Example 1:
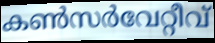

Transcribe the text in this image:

കൺസർവേറ്റീവ്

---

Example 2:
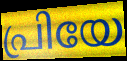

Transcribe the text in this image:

പ്രിയേ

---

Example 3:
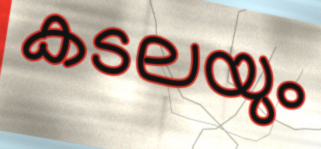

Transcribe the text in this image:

കടലയും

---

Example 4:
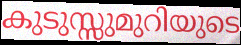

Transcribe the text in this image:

കുടുസ്സുമുറിയുടെ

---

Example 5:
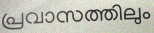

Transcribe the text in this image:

പ്രവാസത്തിലും